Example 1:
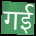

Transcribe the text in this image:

गई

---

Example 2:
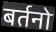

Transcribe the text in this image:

बर्तनो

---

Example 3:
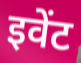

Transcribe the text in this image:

इवेंट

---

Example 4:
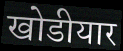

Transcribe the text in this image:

खोडीयार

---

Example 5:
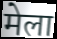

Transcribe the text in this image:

मेला